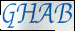
GHAB